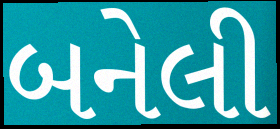
બનેલી